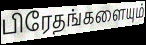
பிரேதங்களையும்